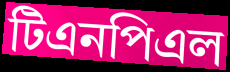
টিএনপিএল